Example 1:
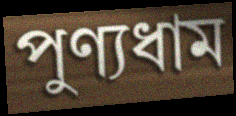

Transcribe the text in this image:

পুণ্যধাম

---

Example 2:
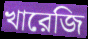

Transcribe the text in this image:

খারেজি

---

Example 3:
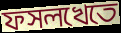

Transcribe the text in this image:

ফসলখেতে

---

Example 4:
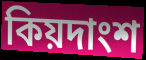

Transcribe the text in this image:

কিয়দাংশ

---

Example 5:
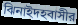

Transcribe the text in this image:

ঝিনাইদহবাসীর